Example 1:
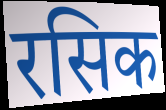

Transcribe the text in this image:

रसिक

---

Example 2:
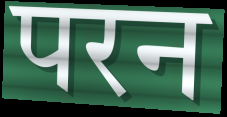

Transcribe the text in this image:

परन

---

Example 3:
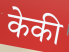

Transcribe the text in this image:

केकी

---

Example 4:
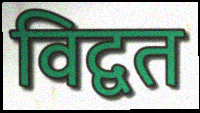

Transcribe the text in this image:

विद्वत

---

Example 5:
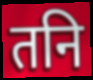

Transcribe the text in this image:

तनि